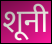
शूनी